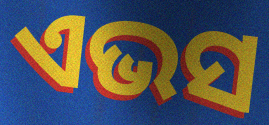
ଏଭସ